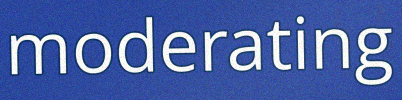
moderating